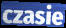
czasie